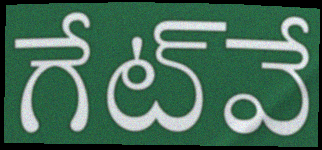
గేట్‌వే